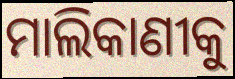
ମାଲିକାଣୀକୁ